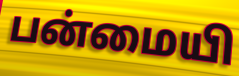
பன்மையி